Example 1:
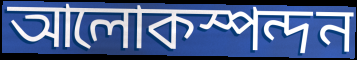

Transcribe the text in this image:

আলোকস্পন্দন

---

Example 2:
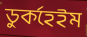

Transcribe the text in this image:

ডুর্কহেইম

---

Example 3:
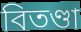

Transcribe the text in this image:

বিতণ্ডা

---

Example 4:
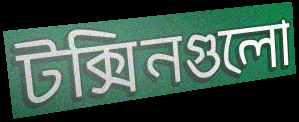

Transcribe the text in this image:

টক্সিনগুলো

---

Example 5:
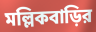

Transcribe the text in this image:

মল্লিকবাড়ির